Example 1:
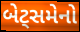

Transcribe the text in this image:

બેટ્સમેનો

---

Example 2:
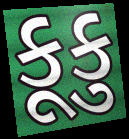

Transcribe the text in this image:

કૂકુ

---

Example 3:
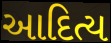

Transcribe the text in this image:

આદિત્ય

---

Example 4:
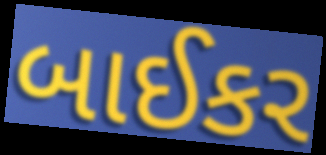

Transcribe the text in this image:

બાઈકર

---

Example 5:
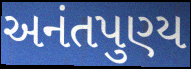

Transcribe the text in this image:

અનંતપુણ્ય